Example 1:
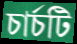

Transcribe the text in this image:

চার্চটি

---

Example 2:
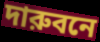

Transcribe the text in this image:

দারুবনে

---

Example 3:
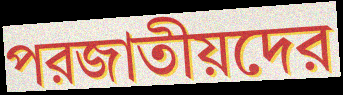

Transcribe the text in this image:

পরজাতীয়দের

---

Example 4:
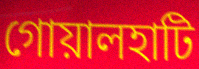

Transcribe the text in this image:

গোয়ালহাটি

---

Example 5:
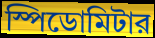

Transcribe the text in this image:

স্পিডোমিটার